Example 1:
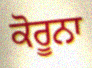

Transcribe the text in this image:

ਕੋਰੂਨਾ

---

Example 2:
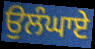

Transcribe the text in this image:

ਉਲੰਘਾਏ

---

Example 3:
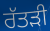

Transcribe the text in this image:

ਰੱਤੜੀ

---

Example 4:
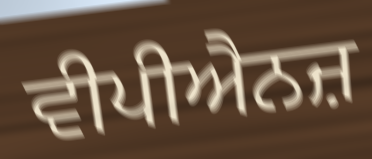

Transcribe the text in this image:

ਵੀਪੀਐਨਜ਼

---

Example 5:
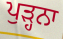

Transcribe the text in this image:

ਪੁੜ੍ਹਨਾ